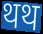
थथ